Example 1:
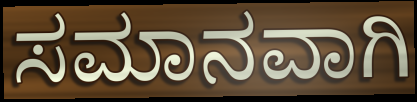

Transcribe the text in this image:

ಸಮಾನವಾಗಿ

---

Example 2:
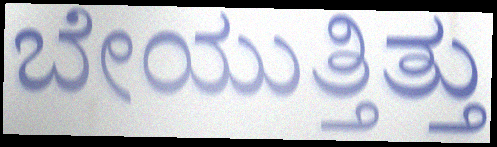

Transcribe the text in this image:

ಬೇಯುತ್ತಿತ್ತು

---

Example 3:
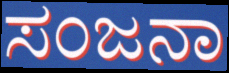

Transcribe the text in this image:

ಸಂಜನಾ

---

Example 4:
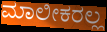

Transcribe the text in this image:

ಮಾಲೀಕರಲ್ಲ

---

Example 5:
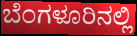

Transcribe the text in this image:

ಬೆಂಗಳೂರಿನಲ್ಲಿ